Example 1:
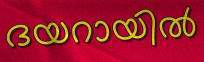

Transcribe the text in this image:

ദയറായിൽ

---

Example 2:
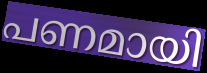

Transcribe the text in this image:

പണമായി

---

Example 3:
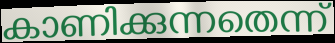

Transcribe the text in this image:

കാണിക്കുന്നതെന്ന്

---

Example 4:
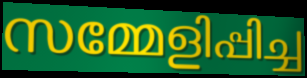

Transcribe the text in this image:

സമ്മേളിപ്പിച്ച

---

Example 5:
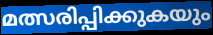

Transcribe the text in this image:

മത്സരിപ്പിക്കുകയും